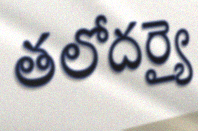
తలోదర్యై